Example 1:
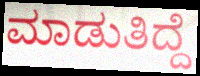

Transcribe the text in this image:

ಮಾಡುತಿದ್ದೆ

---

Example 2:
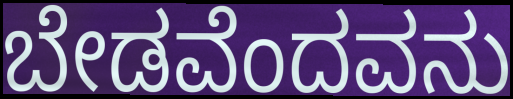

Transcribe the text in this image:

ಬೇಡವೆಂದವನು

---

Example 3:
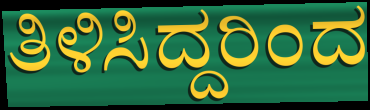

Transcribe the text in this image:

ತಿಳಿಸಿದ್ದರಿಂದ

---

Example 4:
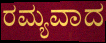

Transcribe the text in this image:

ರಮ್ಯವಾದ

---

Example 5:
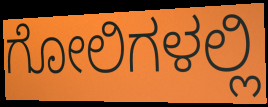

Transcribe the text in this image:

ಗೋಲಿಗಳಲ್ಲಿ